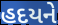
હદયને